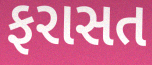
ફરાસત